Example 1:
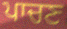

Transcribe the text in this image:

ਪਾਚਣ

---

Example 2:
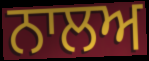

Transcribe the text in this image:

ਨਾਲਅ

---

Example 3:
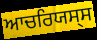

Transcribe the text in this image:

ਆਚਰਿਯਸ੍ਸ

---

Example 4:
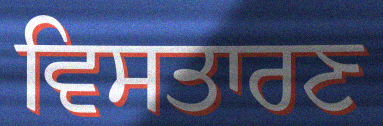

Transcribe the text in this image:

ਵਿਸਤਾਰਣ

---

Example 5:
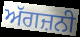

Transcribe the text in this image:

ਅੱਗਜ਼ਨੀ